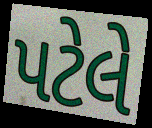
પટેલે